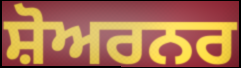
ਸ਼ੋਅਰਨਰ